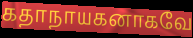
கதாநாயகனாகவே